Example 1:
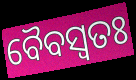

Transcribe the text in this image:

ବୈବସ୍ଵତଃ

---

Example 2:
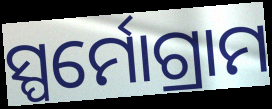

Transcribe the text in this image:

ସ୍ପର୍ମୋଗ୍ରାମ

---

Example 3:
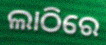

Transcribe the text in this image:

ଲାଠିରେ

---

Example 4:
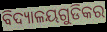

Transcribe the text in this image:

ବିଦ୍ୟାଳୟଗୁଡିକର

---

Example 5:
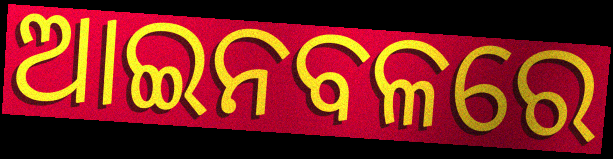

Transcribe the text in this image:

ଆଇନବଳରେ